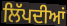
ਲਿੱਪਦੀਆਂ